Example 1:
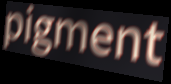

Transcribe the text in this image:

pigment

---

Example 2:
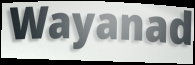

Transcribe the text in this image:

Wayanad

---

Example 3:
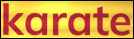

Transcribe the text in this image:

karate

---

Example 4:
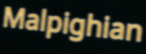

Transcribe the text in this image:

Malpighian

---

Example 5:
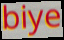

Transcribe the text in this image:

biye